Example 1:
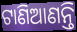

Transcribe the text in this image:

ଟାଣିଆଣନ୍ତି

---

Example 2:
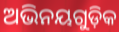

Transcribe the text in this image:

ଅଭିନୟଗୁଡ଼ିକ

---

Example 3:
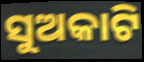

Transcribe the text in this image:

ସୁଅକାଟି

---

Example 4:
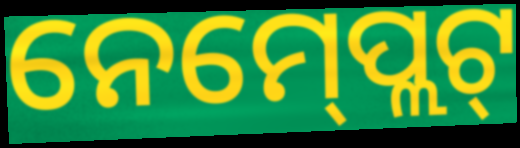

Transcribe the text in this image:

ନେମ୍‍ପ୍ଲେଟ୍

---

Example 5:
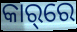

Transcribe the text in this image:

କାର୍‌ରେ